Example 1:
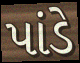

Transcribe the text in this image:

પાંડે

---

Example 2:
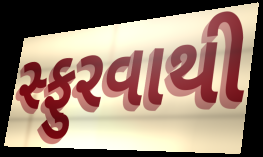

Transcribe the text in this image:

સ્ફુરવાથી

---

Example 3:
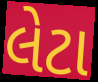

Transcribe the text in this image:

લેટા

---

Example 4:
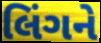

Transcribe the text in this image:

લિંગને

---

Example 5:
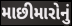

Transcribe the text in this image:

માછીમારોનું